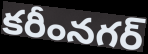
కరీంనగర్